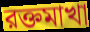
রক্তমাখা